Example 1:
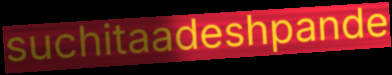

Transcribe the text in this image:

suchitaadeshpande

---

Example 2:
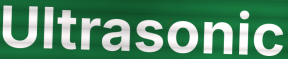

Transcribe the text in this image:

Ultrasonic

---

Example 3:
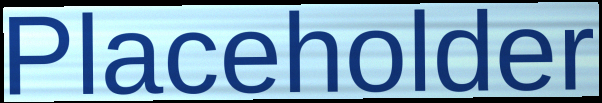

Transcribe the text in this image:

Placeholder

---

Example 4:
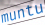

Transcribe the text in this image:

muntu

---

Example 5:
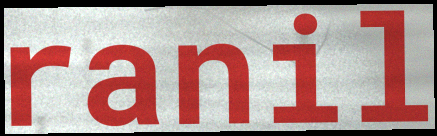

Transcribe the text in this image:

ranil